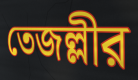
তেজল্লীর